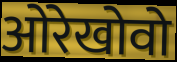
ओरेखोवो